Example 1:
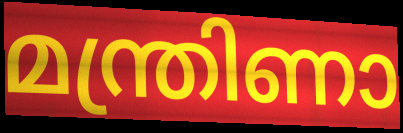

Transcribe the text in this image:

മന്ത്രിണാ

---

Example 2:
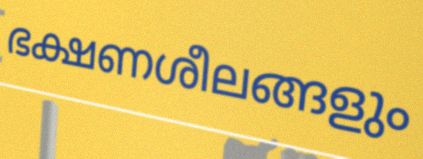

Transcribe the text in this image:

ഭക്ഷണശീലങ്ങളും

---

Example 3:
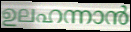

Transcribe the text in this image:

ഉലഹന്നാൻ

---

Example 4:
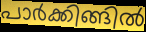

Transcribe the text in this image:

പാർക്കിങ്ങിൽ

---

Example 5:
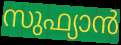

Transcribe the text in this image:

സുഫ്യാൻ